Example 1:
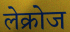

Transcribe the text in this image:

लेक्रोज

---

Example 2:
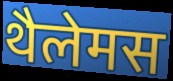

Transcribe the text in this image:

थैलेमस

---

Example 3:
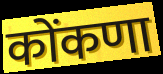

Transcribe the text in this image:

कोंकणा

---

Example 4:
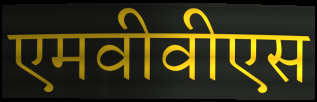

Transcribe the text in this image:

एमवीवीएस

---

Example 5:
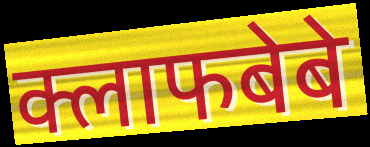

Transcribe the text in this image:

क्लाफबेबे